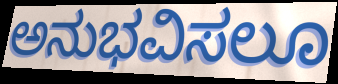
ಅನುಭವಿಸಲೂ